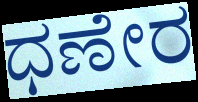
ಧಣೇರ